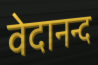
वेदानन्द